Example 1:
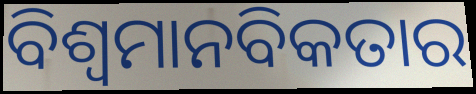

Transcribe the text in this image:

ବିଶ୍ଵମାନବିକତାର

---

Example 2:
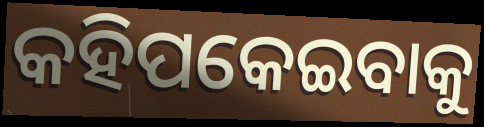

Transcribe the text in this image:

କହିପକେଇବାକୁ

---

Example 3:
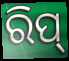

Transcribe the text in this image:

ରିପ୍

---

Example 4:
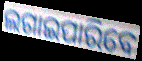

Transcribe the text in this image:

ଲଗାଇପାରିବେ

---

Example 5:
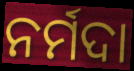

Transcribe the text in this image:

ନର୍ମଦା